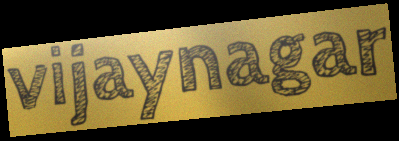
vijaynagar